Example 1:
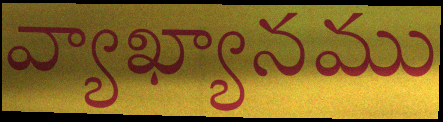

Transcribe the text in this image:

వ్యాఖ్యానము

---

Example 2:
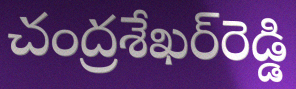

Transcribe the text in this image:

చంద్రశేఖర్‌రెడ్డి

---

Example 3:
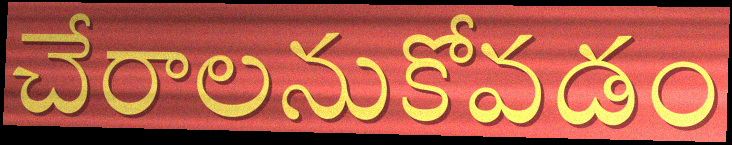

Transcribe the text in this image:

చేరాలనుకోవడం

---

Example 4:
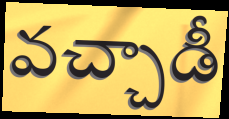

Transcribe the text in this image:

వచ్చాడీ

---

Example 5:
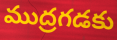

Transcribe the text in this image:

ముద్రగడకు